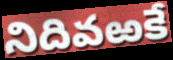
నిదివఱకే